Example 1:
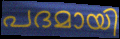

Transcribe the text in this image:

പദമായി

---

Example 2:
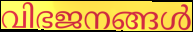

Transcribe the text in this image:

വിഭജനങ്ങൾ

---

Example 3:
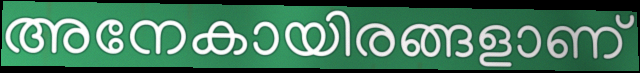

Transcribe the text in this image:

അനേകായിരങ്ങളാണ്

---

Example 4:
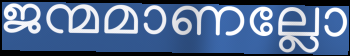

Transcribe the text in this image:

ജന്മമാണല്ലോ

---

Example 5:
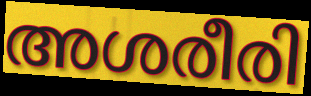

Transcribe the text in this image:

അശരീരി